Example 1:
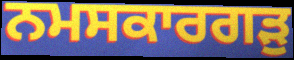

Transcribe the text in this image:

ਨਮਸਕਾਰਗੜੁ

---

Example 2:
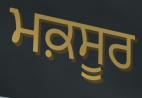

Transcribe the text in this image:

ਮਕ਼ਸੂਰ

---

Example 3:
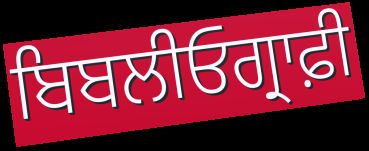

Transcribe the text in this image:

ਬਿਬਲੀਓਗ੍ਰਾਫ਼ੀ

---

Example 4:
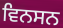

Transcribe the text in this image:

ਵਿਨਸਨ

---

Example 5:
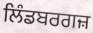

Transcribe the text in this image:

ਲਿੰਡਬਰਗਜ਼